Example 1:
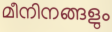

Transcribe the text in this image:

മീനിനങ്ങളും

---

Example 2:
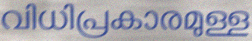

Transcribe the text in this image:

വിധിപ്രകാരമുള്ള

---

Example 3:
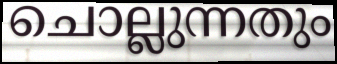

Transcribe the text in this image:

ചൊല്ലുന്നതും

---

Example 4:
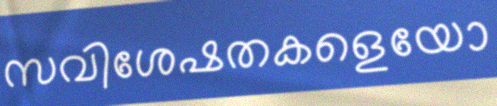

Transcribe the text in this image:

സവിശേഷതകളെയോ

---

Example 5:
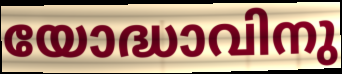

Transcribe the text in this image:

യോദ്ധാവിനു